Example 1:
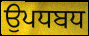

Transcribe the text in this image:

ਉਪਧਬਧ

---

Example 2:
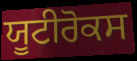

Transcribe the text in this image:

ਯੂਟੀਰੋਕਸ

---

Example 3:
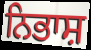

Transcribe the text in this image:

ਨਿਭਾਸ਼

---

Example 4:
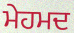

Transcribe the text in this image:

ਮੇਹਮਦ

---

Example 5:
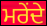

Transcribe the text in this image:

ਮਰੇਂਦੇ